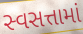
સ્વસત્તામાં